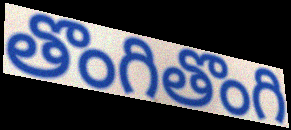
తొంగితొంగి